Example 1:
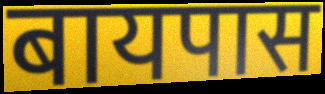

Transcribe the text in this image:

बायपास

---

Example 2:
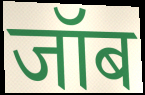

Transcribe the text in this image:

जॉब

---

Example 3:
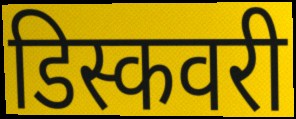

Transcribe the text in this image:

डिस्कवरी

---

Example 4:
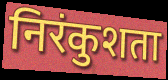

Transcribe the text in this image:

निरंकुशता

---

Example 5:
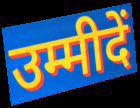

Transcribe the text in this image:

उम्मीदें